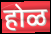
होळ